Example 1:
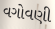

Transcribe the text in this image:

વગોવણી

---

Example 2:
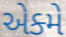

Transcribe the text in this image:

એક્મે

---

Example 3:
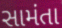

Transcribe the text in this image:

સામંતા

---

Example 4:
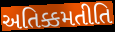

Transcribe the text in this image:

અતિક્કમતીતિ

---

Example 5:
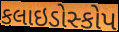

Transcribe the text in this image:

કલાઇડોસ્કોપ